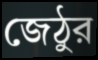
জেঠুর